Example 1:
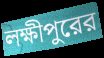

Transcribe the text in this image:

লক্ষীপুরের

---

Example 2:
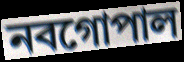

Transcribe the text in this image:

নবগোপাল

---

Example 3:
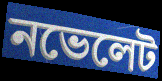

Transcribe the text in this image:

নভেলেট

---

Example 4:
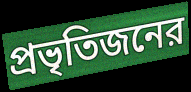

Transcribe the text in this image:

প্রভৃতিজনের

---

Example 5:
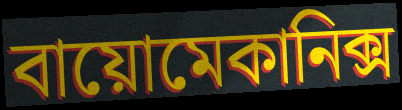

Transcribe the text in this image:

বায়োমেকানিক্স